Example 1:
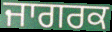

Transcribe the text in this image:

ਜਾਗਰਕ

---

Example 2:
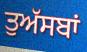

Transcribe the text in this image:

ਤੁਅੱਸਬਾਂ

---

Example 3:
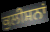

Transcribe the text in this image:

ਕੁਲੀਸ਼ਨਾਂ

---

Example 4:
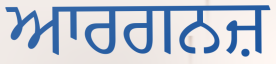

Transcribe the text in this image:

ਆਰਗਨਜ਼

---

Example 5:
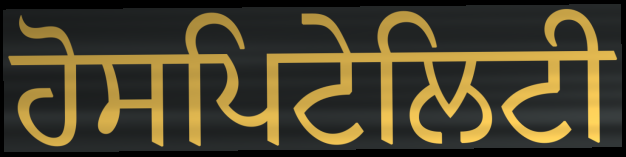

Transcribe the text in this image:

ਹੋਸਪਿਟੇਲਿਟੀ